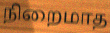
நிறைமாத